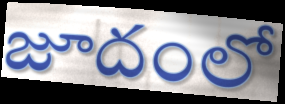
జూదంలో